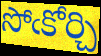
సోఁకోర్చి